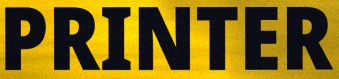
PRINTER